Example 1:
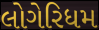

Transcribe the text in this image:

લોગેરિધમ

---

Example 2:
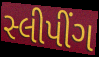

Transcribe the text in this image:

સ્લીપીંગ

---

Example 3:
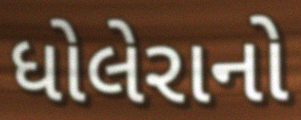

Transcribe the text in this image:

ધોલેરાનો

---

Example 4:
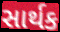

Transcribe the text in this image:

સાર્થક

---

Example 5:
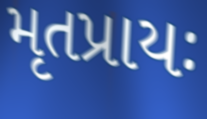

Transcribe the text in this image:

મૃતપ્રાયઃ